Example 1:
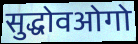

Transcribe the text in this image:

सुद्धोवओगो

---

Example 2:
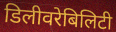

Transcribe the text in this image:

डिलीवरेबिलिटी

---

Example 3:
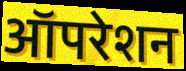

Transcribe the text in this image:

ऑपरेशन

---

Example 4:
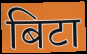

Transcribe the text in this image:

बिटा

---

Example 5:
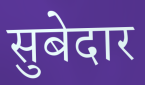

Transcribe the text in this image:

सुबेदार